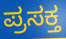
ಪ್ರಸಕ್ತ